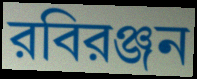
রবিরঞ্জন